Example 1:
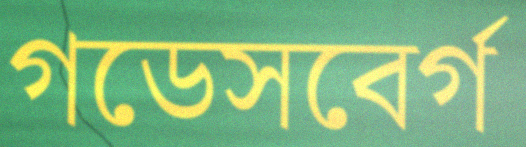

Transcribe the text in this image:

গডেসবের্গ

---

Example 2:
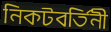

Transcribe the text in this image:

নিকটবর্তিনী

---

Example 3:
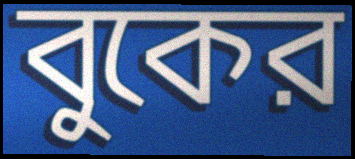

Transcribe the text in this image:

বুকের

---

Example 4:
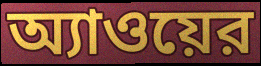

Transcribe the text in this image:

অ্যাওয়ের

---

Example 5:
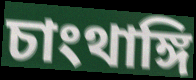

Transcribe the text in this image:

চাংথাঙ্গি